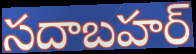
సదాబహర్